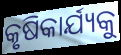
କୃଷିକାର୍ଯ୍ୟକୁ